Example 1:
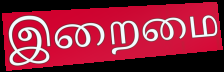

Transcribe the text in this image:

இறைமை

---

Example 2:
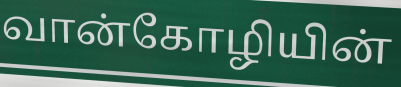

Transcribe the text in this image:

வான்கோழியின்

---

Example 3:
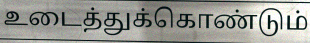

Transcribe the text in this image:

உடைத்துக்கொண்டும்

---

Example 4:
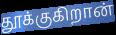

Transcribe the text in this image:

தூக்குகிறான்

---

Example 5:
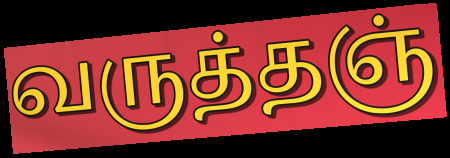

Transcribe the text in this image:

வருத்தஞ்